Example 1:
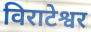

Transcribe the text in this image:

विराटेश्वर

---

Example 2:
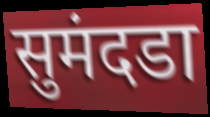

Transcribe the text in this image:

सुमंदडा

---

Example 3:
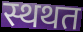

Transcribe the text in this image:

स्थथत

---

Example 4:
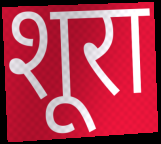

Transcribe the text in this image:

शूरा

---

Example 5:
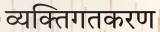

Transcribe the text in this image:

व्यक्तिगतकरण